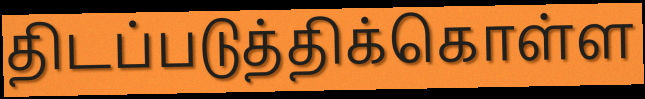
திடப்படுத்திக்கொள்ள